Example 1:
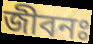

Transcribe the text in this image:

জীবনঃ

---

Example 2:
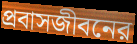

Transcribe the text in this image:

প্রবাসজীবনের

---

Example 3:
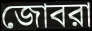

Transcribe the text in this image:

জোবরা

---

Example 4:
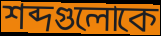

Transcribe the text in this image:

শব্দগুলোকে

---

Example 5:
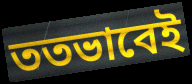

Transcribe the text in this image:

ততভাবেই